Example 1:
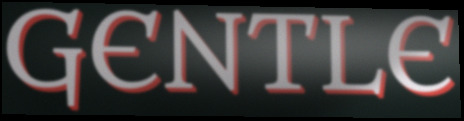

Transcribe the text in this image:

GENTLE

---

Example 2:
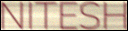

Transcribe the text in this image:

NITESH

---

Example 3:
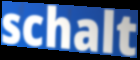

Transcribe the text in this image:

schalt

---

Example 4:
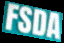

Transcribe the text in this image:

FSDA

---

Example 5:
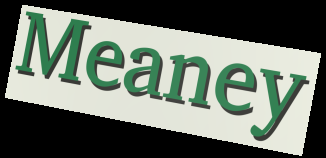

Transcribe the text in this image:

Meaney